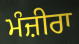
ਮੰਜ਼ੀਰਾ